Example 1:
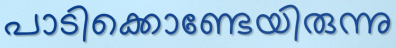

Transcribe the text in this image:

പാടിക്കൊണ്ടേയിരുന്നു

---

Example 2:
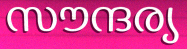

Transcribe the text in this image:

സൗന്ദര്യ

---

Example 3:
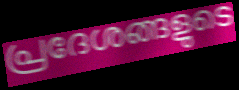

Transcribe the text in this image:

പ്രദേശങ്ങളുടെ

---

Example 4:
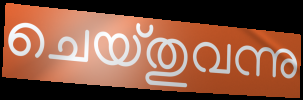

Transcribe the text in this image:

ചെയ്തുവന്നു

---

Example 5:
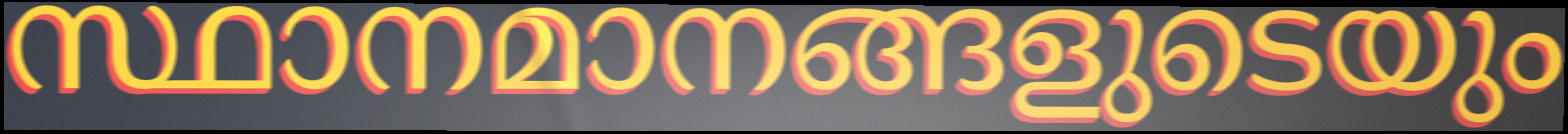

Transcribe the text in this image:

സ്ഥാനമാനങ്ങളുടെയും